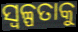
ସ୍ଵଳ୍ପତାକୁ